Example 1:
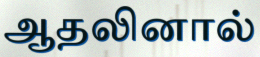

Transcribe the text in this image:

ஆதலினால்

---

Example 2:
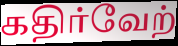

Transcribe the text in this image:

கதிர்வேற்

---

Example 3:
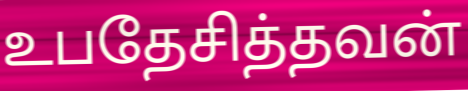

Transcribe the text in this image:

உபதேசித்தவன்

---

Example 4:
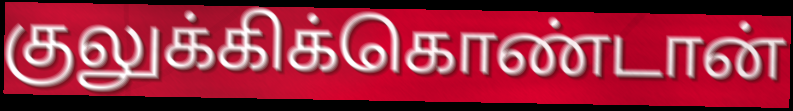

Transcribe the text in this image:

குலுக்கிக்கொண்டான்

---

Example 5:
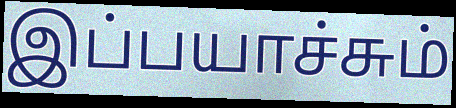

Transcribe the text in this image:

இப்பயாச்சும்